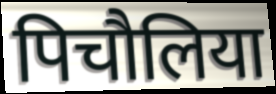
पिचौलिया